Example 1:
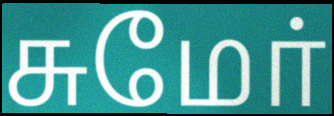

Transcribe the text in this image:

சுமேர்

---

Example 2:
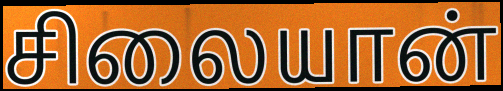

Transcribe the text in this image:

சிலையான்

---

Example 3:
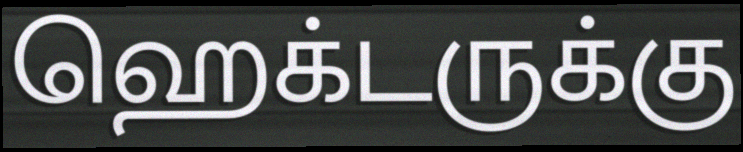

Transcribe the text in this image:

ஹெக்டருக்கு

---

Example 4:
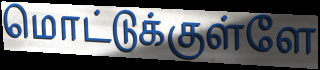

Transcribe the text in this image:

மொட்டுக்குள்ளே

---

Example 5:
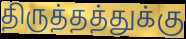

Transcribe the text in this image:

திருத்தத்துக்கு